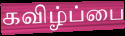
கவிழ்ப்பை